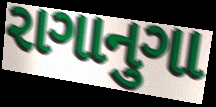
રાગાનુગા